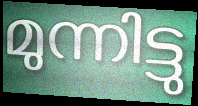
മുന്നിട്ടു